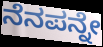
ನೆನಪನ್ನೇ